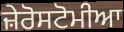
ਜ਼ੇਰੋਸਟੋਮੀਆ